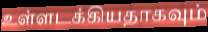
உள்ளடக்கியதாகவும்